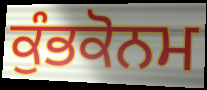
ਕੁੰਭਕੋਨਮ